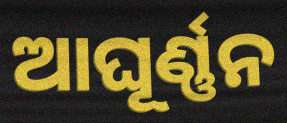
ଆଘୂର୍ଣ୍ଣନ